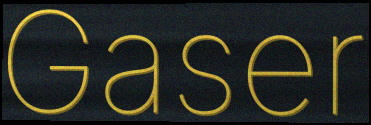
Gaser